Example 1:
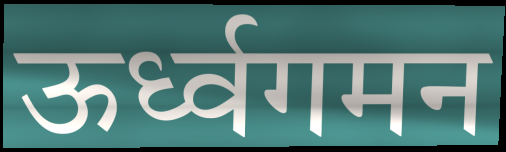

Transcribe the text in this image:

ऊर्ध्वगमन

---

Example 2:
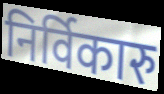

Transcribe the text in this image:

निर्विकारु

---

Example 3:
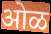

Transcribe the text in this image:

ओळ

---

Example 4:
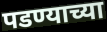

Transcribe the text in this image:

पडण्याच्या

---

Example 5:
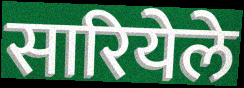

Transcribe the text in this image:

सारियेले